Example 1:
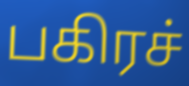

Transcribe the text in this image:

பகிரச்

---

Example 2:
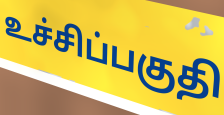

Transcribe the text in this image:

உச்சிப்பகுதி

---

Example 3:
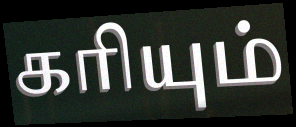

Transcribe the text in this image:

கரியும்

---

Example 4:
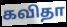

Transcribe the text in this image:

கவிதா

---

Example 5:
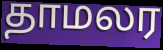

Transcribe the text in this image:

தாமலர